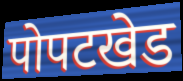
पोपटखेड